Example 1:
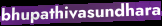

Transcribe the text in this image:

bhupathivasundhara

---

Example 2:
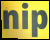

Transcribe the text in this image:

nip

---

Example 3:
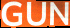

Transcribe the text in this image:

GUN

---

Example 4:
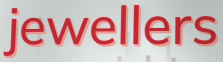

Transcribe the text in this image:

jewellers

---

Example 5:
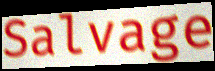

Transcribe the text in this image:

Salvage